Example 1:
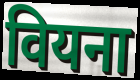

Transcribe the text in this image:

वियना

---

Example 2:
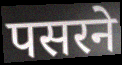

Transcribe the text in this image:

पसरने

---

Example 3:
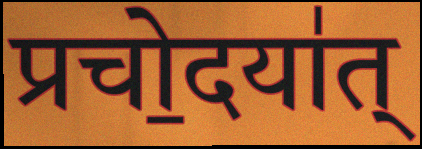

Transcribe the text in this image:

प्रचो॒दया॑त्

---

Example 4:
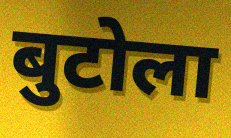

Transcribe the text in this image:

बुटोला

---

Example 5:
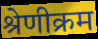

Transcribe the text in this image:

श्रेणीक्रम